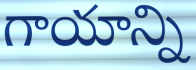
గాయాన్ని